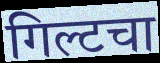
गिल्टचा